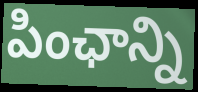
పింఛాన్ని